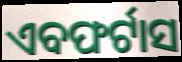
ଏବଫର୍ଟାସ